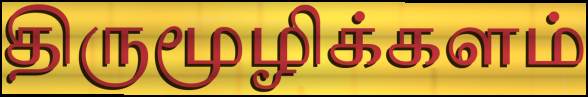
திருமூழிக்களம்